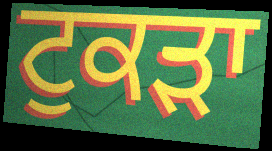
ਟੁਕਡ਼ਾ